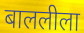
बाललीला